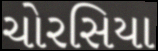
ચોરસિયા